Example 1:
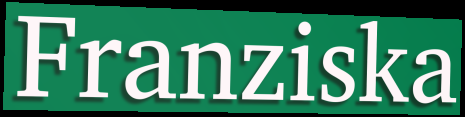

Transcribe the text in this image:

Franziska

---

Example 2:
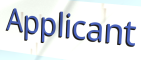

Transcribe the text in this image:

Applicant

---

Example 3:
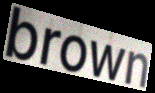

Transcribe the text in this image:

brown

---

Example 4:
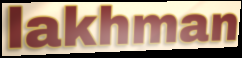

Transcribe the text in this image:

lakhman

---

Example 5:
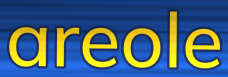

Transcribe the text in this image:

areole